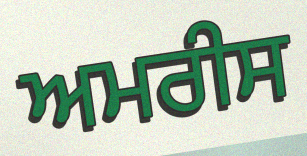
ਅਮਰੀਸ